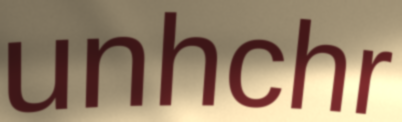
unhchr